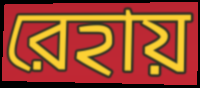
রেহায়